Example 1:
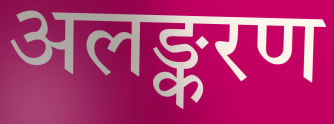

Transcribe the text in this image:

अलङ्करण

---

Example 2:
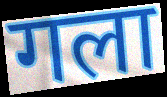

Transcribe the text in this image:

गला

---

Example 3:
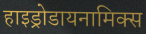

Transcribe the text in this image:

हाइड्रोडायनामिक्स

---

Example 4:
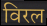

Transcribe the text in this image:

विरल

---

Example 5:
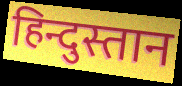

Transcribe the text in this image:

हिन्‍दुस्‍तान